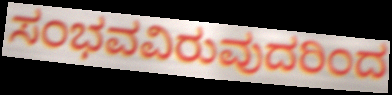
ಸಂಭವವಿರುವುದರಿಂದ